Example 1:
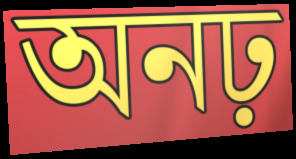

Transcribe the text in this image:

অনঢ়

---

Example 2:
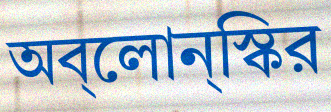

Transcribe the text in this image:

অব্‌লোন্‌স্কির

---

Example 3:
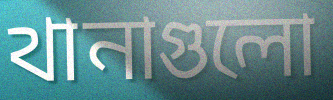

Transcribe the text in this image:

থানাগুলো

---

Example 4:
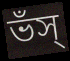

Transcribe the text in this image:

ভঁস্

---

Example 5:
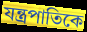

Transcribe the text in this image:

যন্ত্রপাতিকে